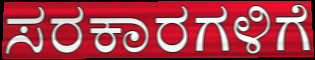
ಸರಕಾರಗಳಿಗೆ